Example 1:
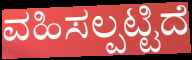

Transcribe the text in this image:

ವಹಿಸಲ್ಪಟ್ಟಿದೆ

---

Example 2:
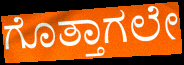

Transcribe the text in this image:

ಗೊತ್ತಾಗಲೇ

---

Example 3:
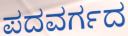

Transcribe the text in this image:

ಪದವರ್ಗದ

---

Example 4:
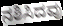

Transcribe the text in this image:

ನಶಿಸಿದವು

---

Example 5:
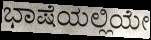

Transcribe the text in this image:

ಭಾಷೆಯಲ್ಲಿಯೇ